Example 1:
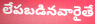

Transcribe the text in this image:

లేపబడినవారైతే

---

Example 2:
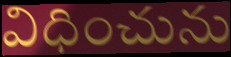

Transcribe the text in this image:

విధించును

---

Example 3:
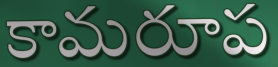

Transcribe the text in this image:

కామరూప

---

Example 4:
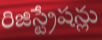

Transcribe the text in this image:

రిజిస్ట్రేషన్లు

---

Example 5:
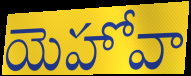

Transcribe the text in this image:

యెహోవా